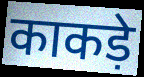
काकड़े